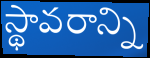
స్థావరాన్ని